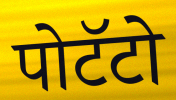
पोटॅटो